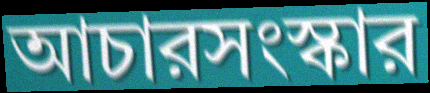
আচারসংস্কার